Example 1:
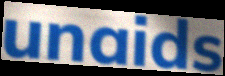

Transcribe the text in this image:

unaids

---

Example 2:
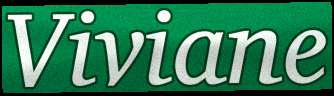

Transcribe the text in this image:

Viviane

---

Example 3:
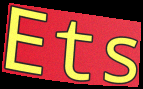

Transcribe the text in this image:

Ets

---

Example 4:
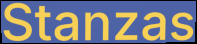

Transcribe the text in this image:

Stanzas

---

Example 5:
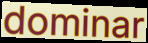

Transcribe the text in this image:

dominar